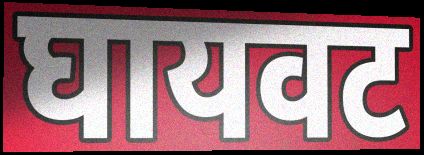
घायवट